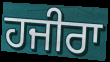
ਹਜੀਰਾ